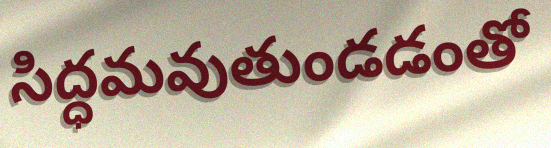
సిద్ధమవుతుండడంతో